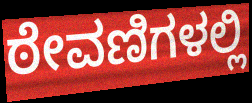
ಠೇವಣಿಗಳಲ್ಲಿ